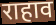
राहाव